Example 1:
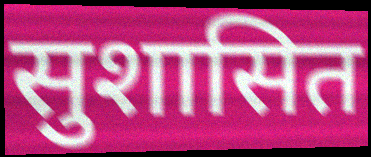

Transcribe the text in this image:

सुशासित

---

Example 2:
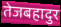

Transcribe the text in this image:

तेजबहादुर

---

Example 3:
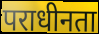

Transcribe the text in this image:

पराधीनता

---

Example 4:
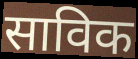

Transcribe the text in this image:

साविक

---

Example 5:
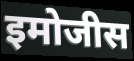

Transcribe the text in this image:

इमोजीस